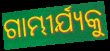
ଗାମ୍ଭୀର୍ଯ୍ୟକୁ